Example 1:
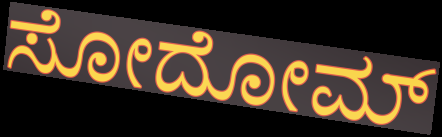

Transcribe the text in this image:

ಸೋದೋಮ್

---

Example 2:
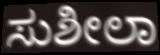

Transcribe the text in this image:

ಸುಶೀಲಾ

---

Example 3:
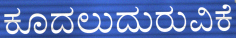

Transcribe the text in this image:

ಕೂದಲುದುರುವಿಕೆ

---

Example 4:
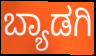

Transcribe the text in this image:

ಬ್ಯಾಡಗಿ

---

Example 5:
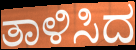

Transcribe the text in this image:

ತಾಳಿಸಿದ